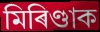
মিৰিণ্ডাক